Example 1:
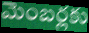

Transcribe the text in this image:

మెంబర్లకు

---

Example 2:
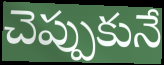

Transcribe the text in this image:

చెప్పుకునే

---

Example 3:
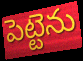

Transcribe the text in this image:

పెట్టెను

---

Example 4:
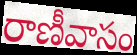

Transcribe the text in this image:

రాణీవాసం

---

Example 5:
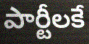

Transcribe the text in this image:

పార్టీలకే